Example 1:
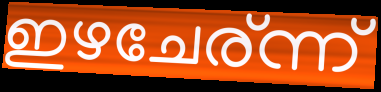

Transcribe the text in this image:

ഇഴചേര്ന്ന്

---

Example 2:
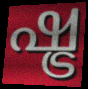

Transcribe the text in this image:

ഷ്ട്ര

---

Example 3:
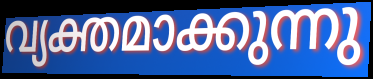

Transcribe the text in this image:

വ്യക്തമാക്കുന്നു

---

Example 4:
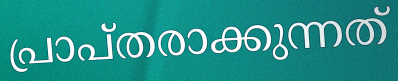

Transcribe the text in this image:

പ്രാപ്തരാക്കുന്നത്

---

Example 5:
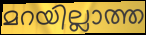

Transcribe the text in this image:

മറയില്ലാത്ത